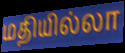
மதியில்லா